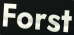
Forst